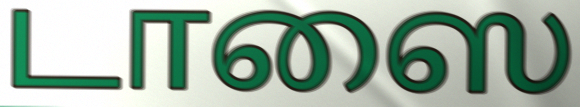
டாஸை